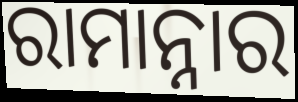
ରାମାନ୍ନାର